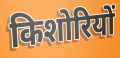
किशोरियों